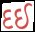
દઈ